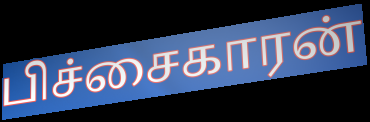
பிச்சைகாரன்